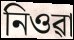
নিওৱা